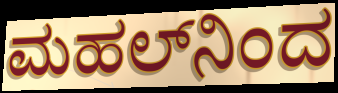
ಮಹಲ್‌ನಿಂದ